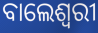
ବାଲେଶ୍ୱରୀ